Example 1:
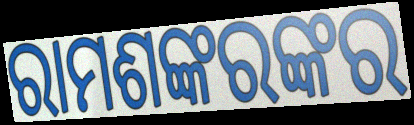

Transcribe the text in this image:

ରାମଶଙ୍କରଙ୍କର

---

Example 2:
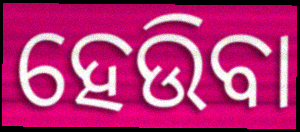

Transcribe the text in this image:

ହେଉିବା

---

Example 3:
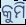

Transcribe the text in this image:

କୁମି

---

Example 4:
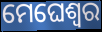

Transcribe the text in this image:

ମେଘେଶ୍ୱର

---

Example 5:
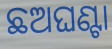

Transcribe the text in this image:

ଛଅଘଣ୍ଟା